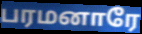
பரமனாரே